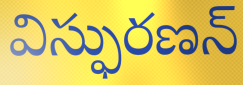
విస్ఫురణన్